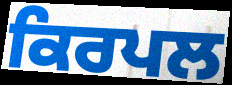
ਕਿਰਪਲ